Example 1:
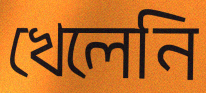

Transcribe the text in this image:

খেলেনি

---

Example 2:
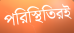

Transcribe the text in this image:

পরিস্থিতিরই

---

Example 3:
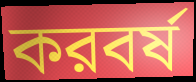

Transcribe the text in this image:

করবর্ষ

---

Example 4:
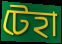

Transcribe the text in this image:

টেহা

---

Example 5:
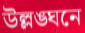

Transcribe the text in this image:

উল্লঙ্ঘনে